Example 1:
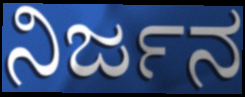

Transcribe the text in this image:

ನಿರ್ಜನ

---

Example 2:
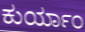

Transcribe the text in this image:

ಕುರ್ಯಾಂ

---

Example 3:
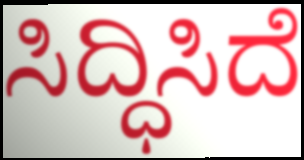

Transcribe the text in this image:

ಸಿದ್ಧಿಸಿದೆ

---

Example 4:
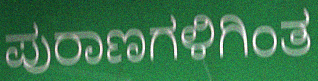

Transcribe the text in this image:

ಪುರಾಣಗಳಿಗಿಂತ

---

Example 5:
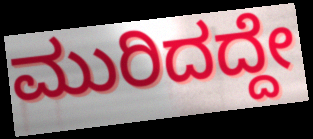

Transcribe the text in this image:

ಮುರಿದದ್ದೇ